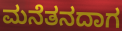
ಮನೆತನದಾಗ